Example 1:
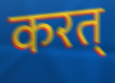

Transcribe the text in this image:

करत्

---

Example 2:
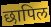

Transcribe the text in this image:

छापिल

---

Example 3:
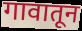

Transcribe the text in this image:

गावातून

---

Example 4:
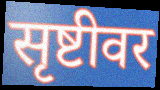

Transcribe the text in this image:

सृष्टीवर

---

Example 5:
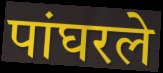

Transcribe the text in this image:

पांघरले